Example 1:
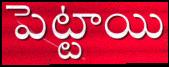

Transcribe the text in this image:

పెట్టాయి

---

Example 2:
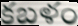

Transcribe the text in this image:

కబళం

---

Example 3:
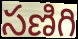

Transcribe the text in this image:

సణిగి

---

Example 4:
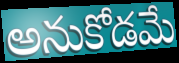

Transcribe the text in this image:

అనుకోడమే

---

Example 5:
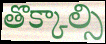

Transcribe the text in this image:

తొక్కాల్సి